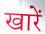
खारें